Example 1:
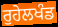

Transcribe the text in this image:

ਰੁਹੇਲਖੰਡ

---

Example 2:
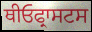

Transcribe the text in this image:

ਥੀਓਫ੍ਰਾਸਟਸ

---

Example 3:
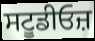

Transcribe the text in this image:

ਸਟੂਡੀਓਜ਼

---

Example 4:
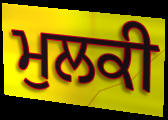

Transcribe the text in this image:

ਮੁਲਕੀ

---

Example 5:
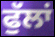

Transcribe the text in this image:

ਫੁੱਲਾਂ